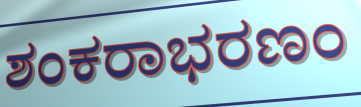
ಶಂಕರಾಭರಣಂ